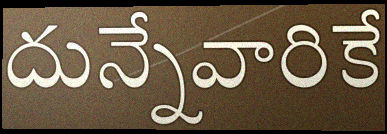
దున్నేవారికే